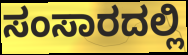
ಸಂಸಾರದಲ್ಲಿ